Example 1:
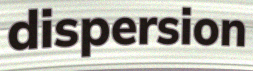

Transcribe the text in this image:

dispersion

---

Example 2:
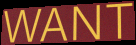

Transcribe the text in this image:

WANT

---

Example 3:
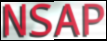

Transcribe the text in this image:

NSAP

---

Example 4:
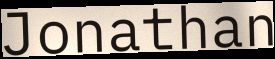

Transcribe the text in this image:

Jonathan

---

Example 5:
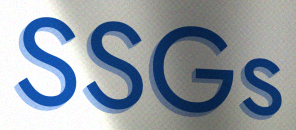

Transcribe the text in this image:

SSGs